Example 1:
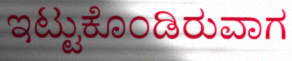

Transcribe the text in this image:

ಇಟ್ಟುಕೊಂಡಿರುವಾಗ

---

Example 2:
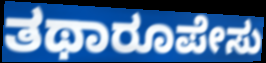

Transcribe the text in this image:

ತಥಾರೂಪೇಸು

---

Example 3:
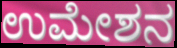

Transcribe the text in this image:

ಉಮೇಶನ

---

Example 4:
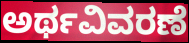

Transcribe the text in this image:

ಅರ್ಥವಿವರಣೆ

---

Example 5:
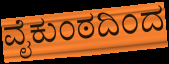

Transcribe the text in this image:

ವೈಕುಂಠದಿಂದ